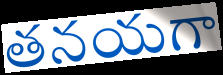
తనయగా